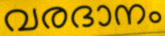
വരദാനം